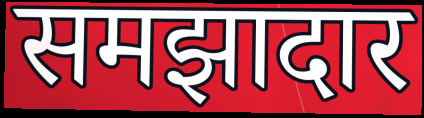
समझादार